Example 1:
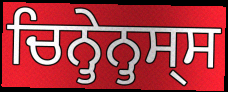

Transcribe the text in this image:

ਚਿਨ੍ਤੇਨ੍ਤਸ੍ਸ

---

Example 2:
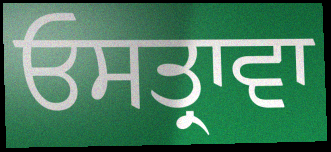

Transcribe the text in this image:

ਓਸਤ੍ਰਾਵਾ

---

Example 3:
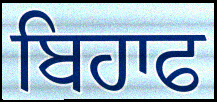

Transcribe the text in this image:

ਬਿਹਾਫ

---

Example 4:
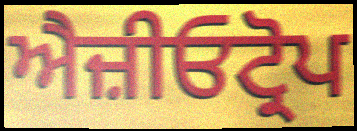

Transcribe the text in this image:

ਐਜ਼ੀਓਟ੍ਰੋਪ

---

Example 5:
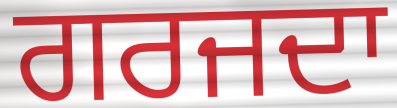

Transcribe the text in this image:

ਗਰਜਦਾ